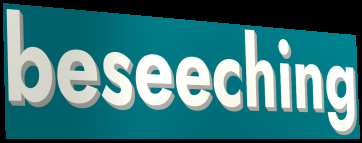
beseeching